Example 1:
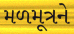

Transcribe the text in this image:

મળમૂત્રને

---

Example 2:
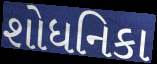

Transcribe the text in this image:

શોધનિકા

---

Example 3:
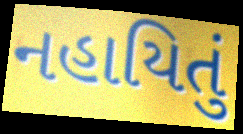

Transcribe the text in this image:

નહાયિતું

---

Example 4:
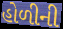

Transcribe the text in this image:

હોળીની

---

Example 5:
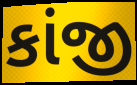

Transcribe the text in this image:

કાંજી